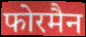
फोरमैन